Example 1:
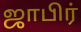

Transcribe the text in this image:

ஜாபிர்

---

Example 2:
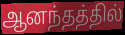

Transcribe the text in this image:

ஆனந்தத்தில்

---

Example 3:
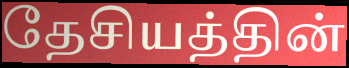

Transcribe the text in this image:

தேசியத்தின்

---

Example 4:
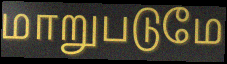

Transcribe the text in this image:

மாறுபடுமே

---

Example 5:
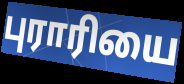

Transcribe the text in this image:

புராரியை